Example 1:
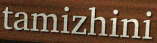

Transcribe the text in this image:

tamizhini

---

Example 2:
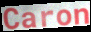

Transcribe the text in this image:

Caron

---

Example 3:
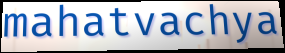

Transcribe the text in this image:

mahatvachya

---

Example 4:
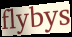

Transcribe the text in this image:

flybys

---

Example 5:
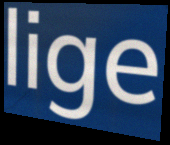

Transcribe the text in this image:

lige